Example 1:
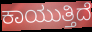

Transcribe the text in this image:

ಕಾಯುತ್ತಿದೆ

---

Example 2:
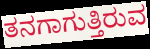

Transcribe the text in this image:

ತನಗಾಗುತ್ತಿರುವ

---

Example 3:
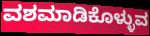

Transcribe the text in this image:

ವಶಮಾಡಿಕೊಳ್ಳುವ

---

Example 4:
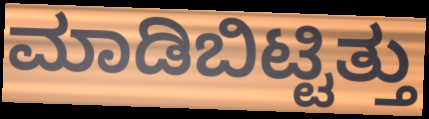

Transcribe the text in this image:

ಮಾಡಿಬಿಟ್ಟಿತ್ತು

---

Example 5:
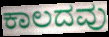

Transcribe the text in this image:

ಕಾಲದವು